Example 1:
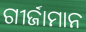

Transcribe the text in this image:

ଗୀର୍ଜାମାନ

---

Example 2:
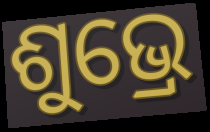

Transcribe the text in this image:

ଶୁଭ୍ରେ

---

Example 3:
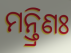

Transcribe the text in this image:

ମନ୍ତ୍ରିଣଃ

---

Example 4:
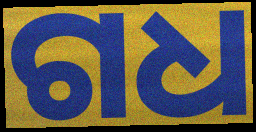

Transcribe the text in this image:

ଗଧ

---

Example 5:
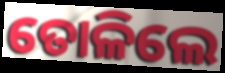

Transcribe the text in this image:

ତୋଳିଲେ